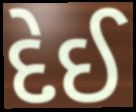
દેઈ